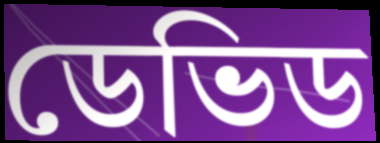
ডেভিড